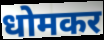
धोमकर